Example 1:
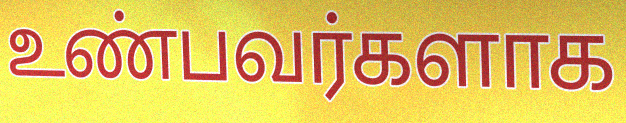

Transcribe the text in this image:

உண்பவர்களாக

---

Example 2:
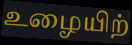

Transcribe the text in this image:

உழையிற்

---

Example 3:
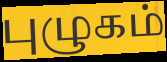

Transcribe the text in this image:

புழுகம்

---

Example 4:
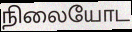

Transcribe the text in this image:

நிலையோட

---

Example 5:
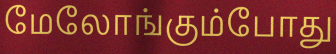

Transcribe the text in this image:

மேலோங்கும்போது